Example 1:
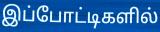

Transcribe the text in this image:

இப்போட்டிகளில்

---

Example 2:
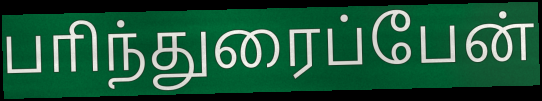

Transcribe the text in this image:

பரிந்துரைப்பேன்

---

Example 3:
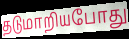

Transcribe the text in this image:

தடுமாறியபோது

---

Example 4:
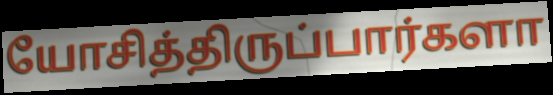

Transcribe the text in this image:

யோசித்திருப்பார்களா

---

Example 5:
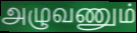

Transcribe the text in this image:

அழுவணும்